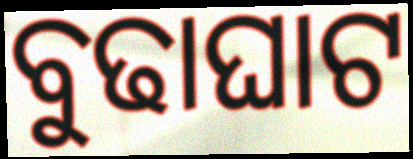
ବୁଢାଘାଟ